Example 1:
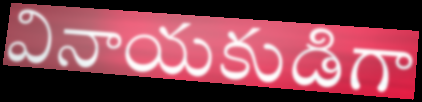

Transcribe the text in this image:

వినాయకుడిగా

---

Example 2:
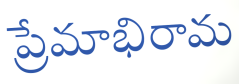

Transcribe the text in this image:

ప్రేమాభిరామ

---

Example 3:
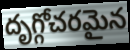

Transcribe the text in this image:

దృగ్గోచరమైన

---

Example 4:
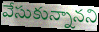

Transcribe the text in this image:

వేసుకున్నానని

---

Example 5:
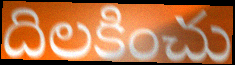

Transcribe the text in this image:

దిలకించు